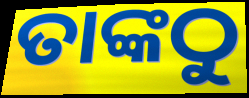
ତାଙ୍କଠୁ